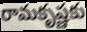
రామకృష్ణకు